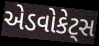
એડવોકેટ્સ